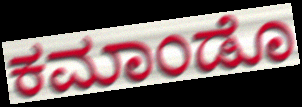
ಕಮಾಂಡೊ